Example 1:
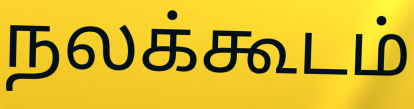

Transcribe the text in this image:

நலக்கூடம்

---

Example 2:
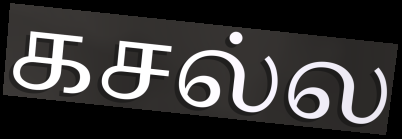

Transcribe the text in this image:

கசல்ல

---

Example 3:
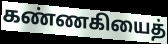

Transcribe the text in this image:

கண்ணகியைத்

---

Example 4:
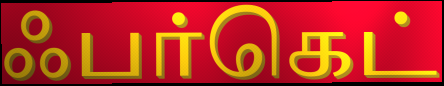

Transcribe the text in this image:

ஃபர்கெட்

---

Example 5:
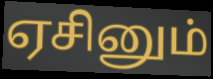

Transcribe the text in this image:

ஏசினும்